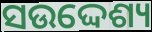
ସଉଦ୍ଦେଶ୍ୟ